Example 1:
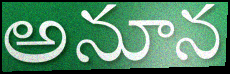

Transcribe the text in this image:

అనూన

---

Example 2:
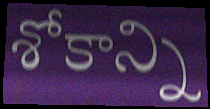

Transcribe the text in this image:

శోకాన్ని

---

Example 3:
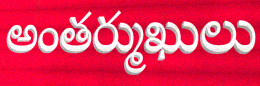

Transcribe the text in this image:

అంతర్ముఖులు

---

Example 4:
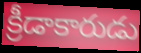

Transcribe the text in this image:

క్రీడాకారుడు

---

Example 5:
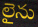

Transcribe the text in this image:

లైను